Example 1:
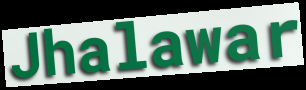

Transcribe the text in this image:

Jhalawar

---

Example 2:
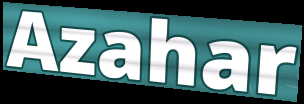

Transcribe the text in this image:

Azahar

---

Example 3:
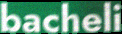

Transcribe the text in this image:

bacheli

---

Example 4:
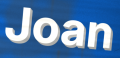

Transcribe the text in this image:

Joan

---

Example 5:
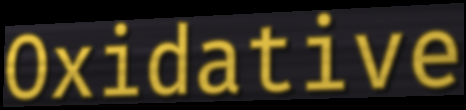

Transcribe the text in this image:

Oxidative